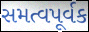
સમત્વપૂર્વક